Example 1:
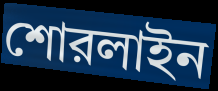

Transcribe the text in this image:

শোরলাইন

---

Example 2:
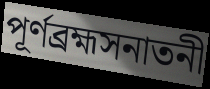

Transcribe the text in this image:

পূর্ণব্রহ্মসনাতনী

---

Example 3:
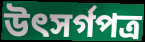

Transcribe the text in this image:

উৎসর্গপত্র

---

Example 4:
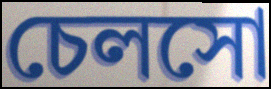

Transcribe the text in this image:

চেলসো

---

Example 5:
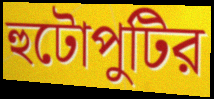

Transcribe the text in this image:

হুটোপুটির